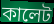
কালেট